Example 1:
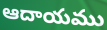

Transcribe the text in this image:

ఆదాయము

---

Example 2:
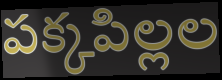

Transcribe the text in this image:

పక్కపిల్లల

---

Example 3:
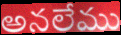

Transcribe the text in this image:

అనలేము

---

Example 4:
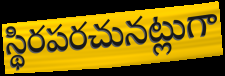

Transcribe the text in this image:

స్థిరపరచునట్లుగా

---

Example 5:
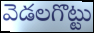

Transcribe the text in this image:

వెడలగొట్టు